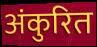
अंकुरित